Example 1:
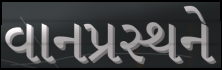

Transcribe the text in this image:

વાનપ્રસ્થને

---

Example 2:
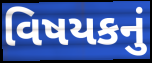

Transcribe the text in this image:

વિષયકનું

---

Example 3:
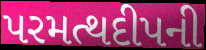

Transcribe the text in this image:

પરમત્થદીપની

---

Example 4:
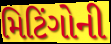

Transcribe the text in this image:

મિટિંગોની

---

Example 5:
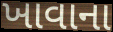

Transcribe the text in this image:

ખાવાના